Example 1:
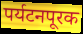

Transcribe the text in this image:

पर्यटनपूरक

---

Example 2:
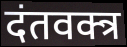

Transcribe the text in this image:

दंतवक्त्र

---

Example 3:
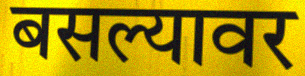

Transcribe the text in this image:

बसल्यावर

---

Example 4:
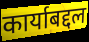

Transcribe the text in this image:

कार्याबद्दल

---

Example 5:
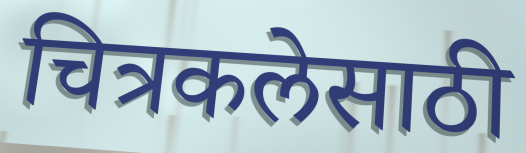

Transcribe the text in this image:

चित्रकलेसाठी